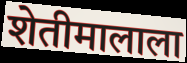
शेतीमालाला